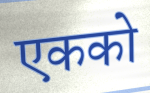
एकको